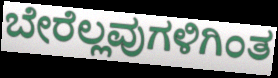
ಬೇರೆಲ್ಲವುಗಳಿಗಿಂತ